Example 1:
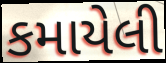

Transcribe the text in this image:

કમાયેલી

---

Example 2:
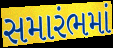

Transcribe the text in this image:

સમારંભમાં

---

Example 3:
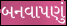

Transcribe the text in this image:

બનવાપણું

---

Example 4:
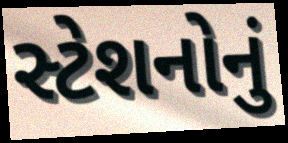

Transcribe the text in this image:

સ્ટેશનોનું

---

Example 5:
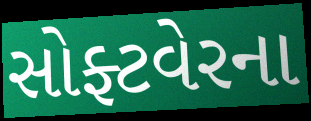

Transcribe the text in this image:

સોફ્ટવેરના